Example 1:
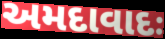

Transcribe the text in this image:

અમદાવાદઃ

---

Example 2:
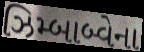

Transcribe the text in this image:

ઝિમ્બાબ્વેના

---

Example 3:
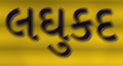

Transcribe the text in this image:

લઘુકદ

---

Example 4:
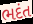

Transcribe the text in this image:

ભદંત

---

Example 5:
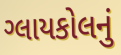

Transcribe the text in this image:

ગ્લાયકોલનું